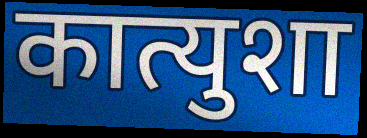
कात्युशा